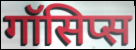
गॉसिप्स